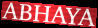
ABHAYA